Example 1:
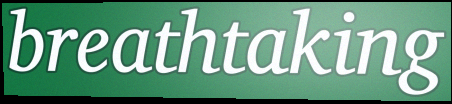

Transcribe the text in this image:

breathtaking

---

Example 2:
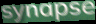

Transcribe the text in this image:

synapse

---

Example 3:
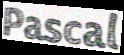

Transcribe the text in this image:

Pascal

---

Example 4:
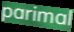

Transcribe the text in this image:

parimal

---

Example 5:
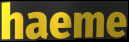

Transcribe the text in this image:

haeme